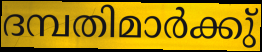
ദമ്പതിമാർക്കു്